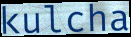
kulcha